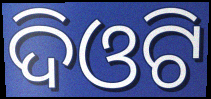
ଦିଓଟି